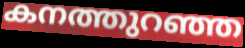
കനത്തുറഞ്ഞ